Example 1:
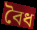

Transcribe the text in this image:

বৈধ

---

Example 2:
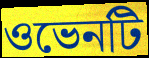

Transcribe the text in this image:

ওভেনটি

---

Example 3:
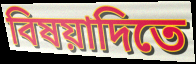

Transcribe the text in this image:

বিষয়াদিতে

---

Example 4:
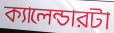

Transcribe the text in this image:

ক্যালেন্ডারটা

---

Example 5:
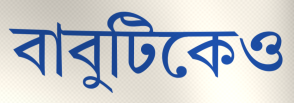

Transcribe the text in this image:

বাবুটিকেও